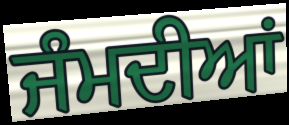
ਜੰਮਦੀਆਂ